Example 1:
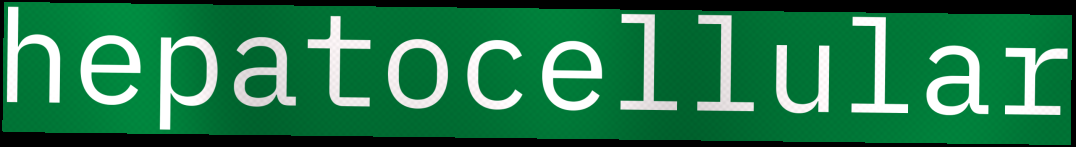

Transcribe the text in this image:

hepatocellular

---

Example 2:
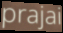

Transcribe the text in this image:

prajai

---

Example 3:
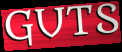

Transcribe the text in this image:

GUTS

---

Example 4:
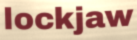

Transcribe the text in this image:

lockjaw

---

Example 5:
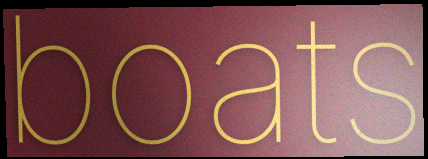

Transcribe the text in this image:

boats